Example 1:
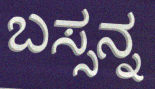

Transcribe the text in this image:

ಬಸ್ಸನ್ನ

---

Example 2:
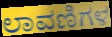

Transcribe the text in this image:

ಲಾವಣಿಗಳ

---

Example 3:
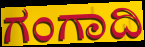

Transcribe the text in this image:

ಗಂಗಾದಿ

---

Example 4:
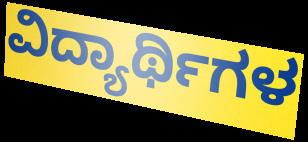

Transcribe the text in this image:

ವಿದ್ಯಾರ್ಥಿಗಳ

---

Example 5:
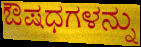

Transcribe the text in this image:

ಔಷಧಗಳನ್ನು